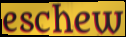
eschew